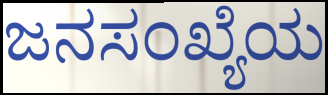
ಜನಸಂಖ್ಯೆಯ